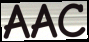
AAC